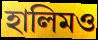
হালিমও